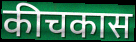
कीचकास